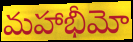
మహాభీమో